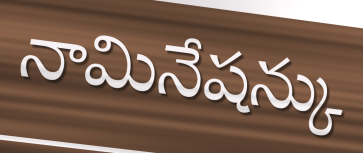
నామినేషన్కు